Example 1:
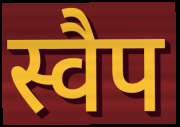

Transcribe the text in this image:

स्वैप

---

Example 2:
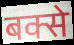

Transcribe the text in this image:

बक्से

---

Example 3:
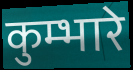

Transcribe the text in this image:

कुम्भारे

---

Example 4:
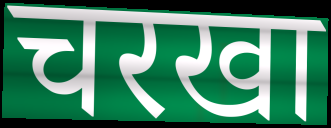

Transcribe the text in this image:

चरखा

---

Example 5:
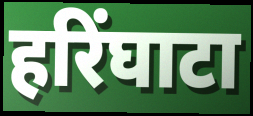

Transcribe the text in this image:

हरिंघाटा